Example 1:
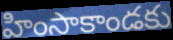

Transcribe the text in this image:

హింసాకాండకు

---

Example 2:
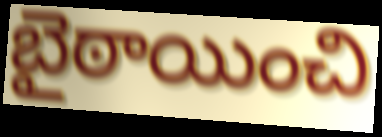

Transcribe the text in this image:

బైఠాయించి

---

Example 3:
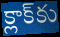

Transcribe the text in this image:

క్లాక్‌కు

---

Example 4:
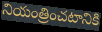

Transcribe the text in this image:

నియంత్రించటానికి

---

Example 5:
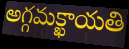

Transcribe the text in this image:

అగ్గమక్ఖాయతి